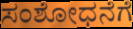
ಸಂಶೋಧನೆಗೆ